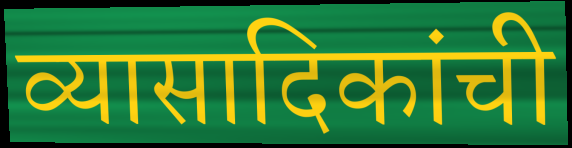
व्यासादिकांची